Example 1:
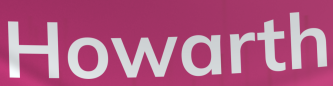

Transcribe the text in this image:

Howarth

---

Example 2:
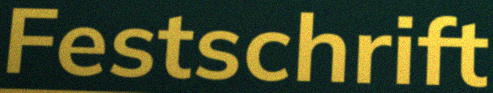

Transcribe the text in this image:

Festschrift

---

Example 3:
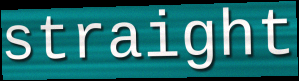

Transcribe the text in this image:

straight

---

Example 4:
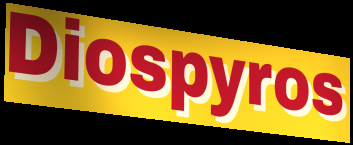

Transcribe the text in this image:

Diospyros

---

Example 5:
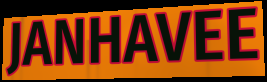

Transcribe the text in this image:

JANHAVEE